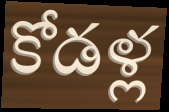
కోడళ్ల